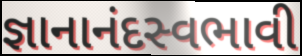
જ્ઞાનાનંદસ્વભાવી